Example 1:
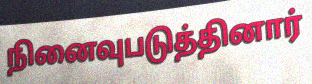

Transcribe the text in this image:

நினைவுபடுத்தினார்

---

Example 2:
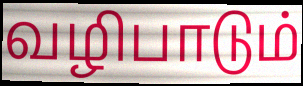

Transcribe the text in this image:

வழிபாடும்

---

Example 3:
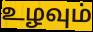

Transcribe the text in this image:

உழவும்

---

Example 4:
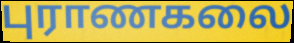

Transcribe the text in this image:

புராணகலை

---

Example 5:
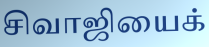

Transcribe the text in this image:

சிவாஜியைக்